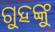
ଗୁହଙ୍କୁ